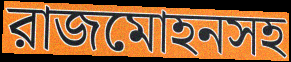
রাজমোহনসহ